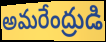
అమరేంద్రుడి